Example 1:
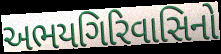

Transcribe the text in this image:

અભયગિરિવાસિનો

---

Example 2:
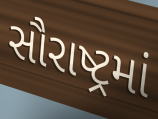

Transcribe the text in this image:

સૌરાષ્ટ્રમાં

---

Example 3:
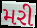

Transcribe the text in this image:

મરી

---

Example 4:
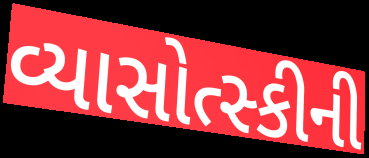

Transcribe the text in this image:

વ્યાસોત્સ્કીની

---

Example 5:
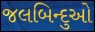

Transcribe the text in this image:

જલબિન્દુઓ